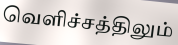
வெளிச்சத்திலும்